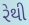
રેથી